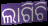
ଲାଗିଚି